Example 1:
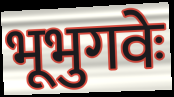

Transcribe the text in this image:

भूभुगवेः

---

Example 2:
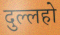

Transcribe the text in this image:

दुल्लहो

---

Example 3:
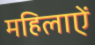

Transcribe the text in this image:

महिलाऐं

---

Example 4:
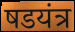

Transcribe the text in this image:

षडयंत्र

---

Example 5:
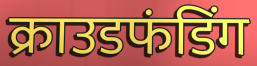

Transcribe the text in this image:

क्राउडफंडिंग